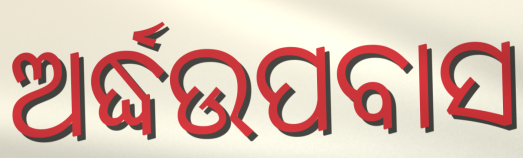
ଅର୍ଦ୍ଧଉପବାସ